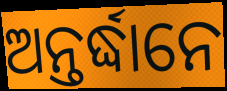
ଅନ୍ତର୍ଦ୍ଧାନେ